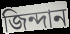
জিন্দান